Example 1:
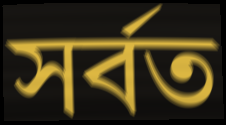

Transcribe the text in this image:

সর্বত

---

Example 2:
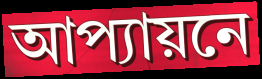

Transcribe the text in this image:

আপ্যায়নে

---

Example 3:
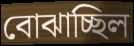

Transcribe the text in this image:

বোঝাচ্ছিল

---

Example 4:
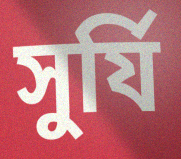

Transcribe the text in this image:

সুর্যি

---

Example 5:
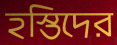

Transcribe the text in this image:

হস্তিদের